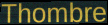
Thombre